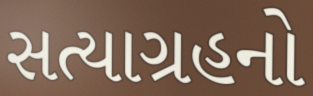
સત્યાગ્રહનો